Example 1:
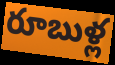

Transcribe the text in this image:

రూబుళ్ల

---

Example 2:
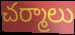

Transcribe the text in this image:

చర్మాలు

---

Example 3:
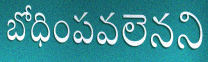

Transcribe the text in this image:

బోధింపవలెనని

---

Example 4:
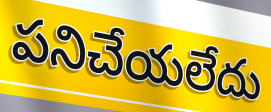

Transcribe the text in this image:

పనిచేయలేదు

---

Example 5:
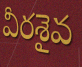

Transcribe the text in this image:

వీరశైవ